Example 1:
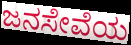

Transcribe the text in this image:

ಜನಸೇವೆಯ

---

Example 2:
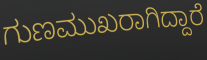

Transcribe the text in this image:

ಗುಣಮುಖರಾಗಿದ್ದಾರೆ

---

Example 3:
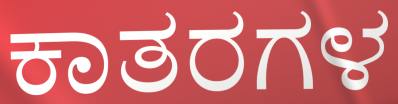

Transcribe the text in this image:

ಕಾತರಗಳ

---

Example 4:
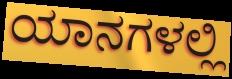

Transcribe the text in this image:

ಯಾನಗಳಲ್ಲಿ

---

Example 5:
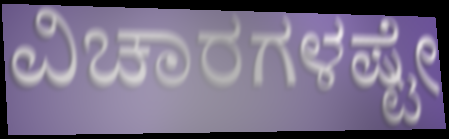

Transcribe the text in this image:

ವಿಚಾರಗಳಷ್ಟೇ